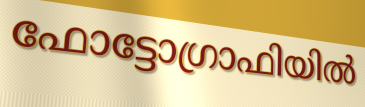
ഫോട്ടോഗ്രാഫിയിൽ